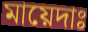
মায়েদাঃ